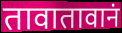
तावातावानं